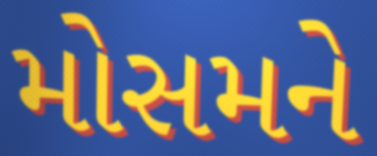
મોસમને